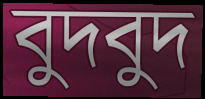
বুদবুদ